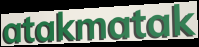
atakmatak